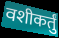
वशीकर्तुं